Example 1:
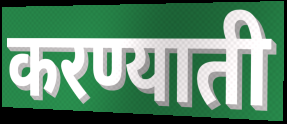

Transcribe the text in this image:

करण्याती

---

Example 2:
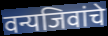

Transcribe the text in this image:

वन्यजिवांचे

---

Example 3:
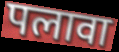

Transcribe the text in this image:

पलावा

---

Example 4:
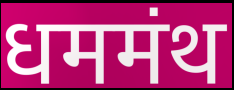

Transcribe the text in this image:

धममंथ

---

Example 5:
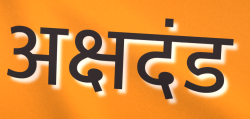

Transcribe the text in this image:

अक्षदंड